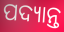
ପଦ୍ୟାନ୍ତ